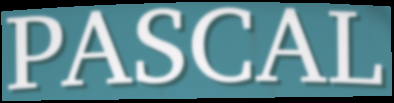
PASCAL